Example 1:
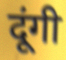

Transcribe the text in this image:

दूंगी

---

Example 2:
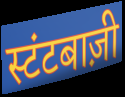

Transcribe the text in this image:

स्टंटबाज़ी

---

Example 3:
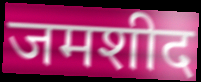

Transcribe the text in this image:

जमशीद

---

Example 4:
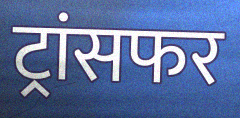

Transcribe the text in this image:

ट्रांसफर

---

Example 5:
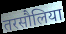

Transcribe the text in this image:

तरसौलिया